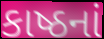
કાષ્ઠનાં